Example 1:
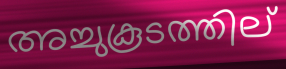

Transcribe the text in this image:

അച്ചുകൂടത്തില്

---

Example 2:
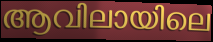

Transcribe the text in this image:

ആവിലായിലെ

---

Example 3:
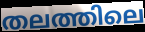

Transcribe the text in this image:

തലത്തിലെ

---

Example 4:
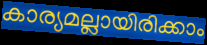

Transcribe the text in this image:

കാര്യമല്ലായിരിക്കാം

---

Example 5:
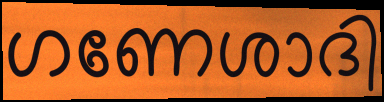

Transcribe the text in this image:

ഗണേശാദി